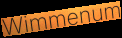
Wimmenum